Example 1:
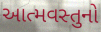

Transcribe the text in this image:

આત્મવસ્તુનો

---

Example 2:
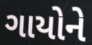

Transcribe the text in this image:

ગાયોને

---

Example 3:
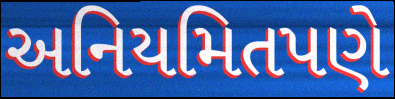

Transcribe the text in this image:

અનિયમિતપણે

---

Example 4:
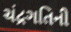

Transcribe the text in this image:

ચંદ્રગતિની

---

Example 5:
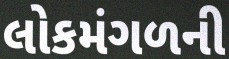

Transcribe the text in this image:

લોકમંગળની